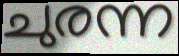
ചുരന്ന